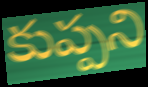
కుప్పని